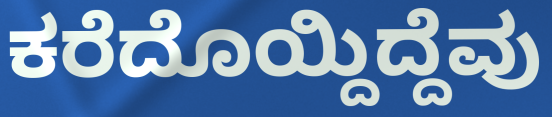
ಕರೆದೊಯ್ದಿದ್ದೆವು